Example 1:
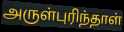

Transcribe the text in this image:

அருள்புரிந்தாள்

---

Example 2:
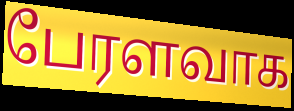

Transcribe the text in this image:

பேரளவாக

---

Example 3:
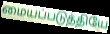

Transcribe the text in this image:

மையப்படுத்தியே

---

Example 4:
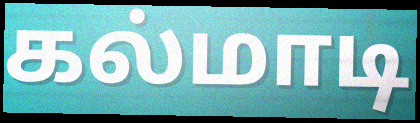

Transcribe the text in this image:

கல்மாடி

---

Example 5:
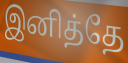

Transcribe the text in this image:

இனித்தே